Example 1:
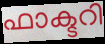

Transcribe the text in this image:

ഫാക്ടറി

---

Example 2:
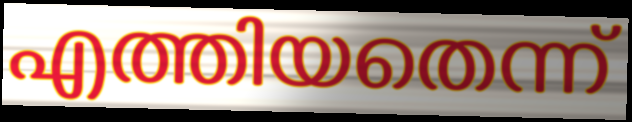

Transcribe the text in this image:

എത്തിയതെന്ന്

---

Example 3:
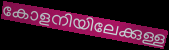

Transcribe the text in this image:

കോളനിയിലേക്കുള്ള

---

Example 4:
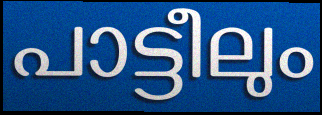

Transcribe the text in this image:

പാട്ടീലും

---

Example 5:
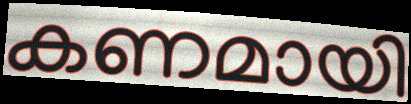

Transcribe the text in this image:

കണമായി